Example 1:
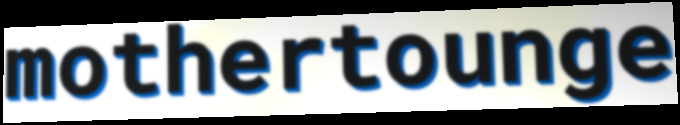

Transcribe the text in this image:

mothertounge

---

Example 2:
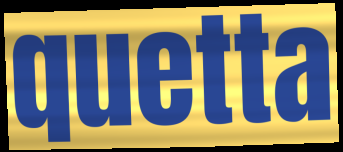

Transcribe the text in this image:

quetta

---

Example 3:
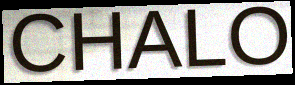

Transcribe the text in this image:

CHALO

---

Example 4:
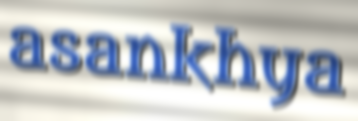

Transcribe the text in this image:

asankhya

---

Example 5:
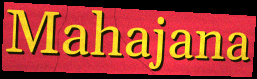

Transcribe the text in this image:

Mahajana